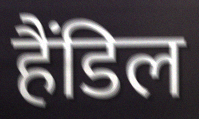
हैंडिल